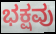
ಭಕ್ಷವು